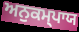
ਅਨੁਕਮ੍ਪਾਯ